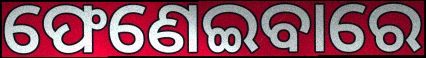
ଫେଣେଇବାରେ